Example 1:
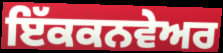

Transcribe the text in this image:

ਇੱਕਕਨਵੇਅਰ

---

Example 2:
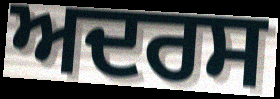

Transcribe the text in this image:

ਅਦਰਸ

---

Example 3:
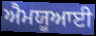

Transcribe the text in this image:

ਐਮਯੂਆਈ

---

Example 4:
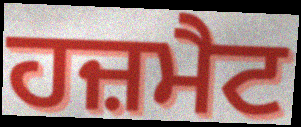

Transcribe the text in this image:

ਹਜ਼ਮੈਟ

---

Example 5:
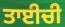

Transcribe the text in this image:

ਤਾਈਚੀ